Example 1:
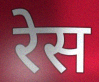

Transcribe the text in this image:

रेस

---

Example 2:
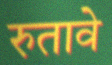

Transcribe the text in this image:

रुतावे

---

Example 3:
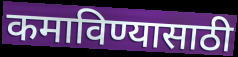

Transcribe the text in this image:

कमाविण्यासाठी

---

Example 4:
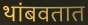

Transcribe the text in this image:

थांबवतात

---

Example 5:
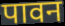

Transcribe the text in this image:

पावन